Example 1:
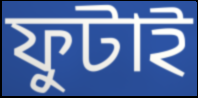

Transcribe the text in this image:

ফুটাই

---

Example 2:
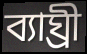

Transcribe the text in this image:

ব্যাঘ্ৰী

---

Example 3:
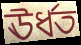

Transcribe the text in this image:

ঊৰ্ধত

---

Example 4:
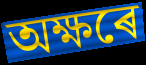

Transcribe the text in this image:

অক্ষৰে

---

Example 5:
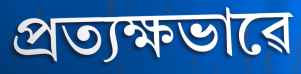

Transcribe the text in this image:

প্ৰত্যক্ষভাৱে